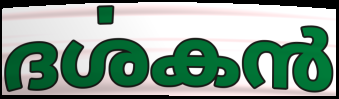
ദൎശകൻ